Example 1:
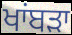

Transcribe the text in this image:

ਖਾਂਬੜਾ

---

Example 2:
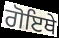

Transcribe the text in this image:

ਗੋਇਥੇ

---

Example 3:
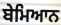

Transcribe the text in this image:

ਬੇਮਿਆਨ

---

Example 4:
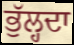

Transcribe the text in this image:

ਭੁੱਲ੍ਹਦਾ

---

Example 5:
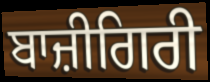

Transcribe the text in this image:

ਬਾਜ਼ੀਗਿਰੀ